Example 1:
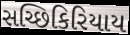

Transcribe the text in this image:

સચ્છિકિરિયાય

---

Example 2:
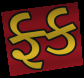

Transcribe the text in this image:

ફ્ક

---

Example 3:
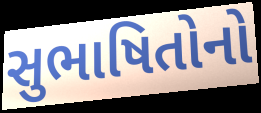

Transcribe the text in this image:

સુભાષિતોનો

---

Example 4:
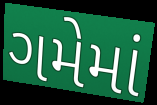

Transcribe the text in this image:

ગમેમાં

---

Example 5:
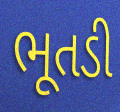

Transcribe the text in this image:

ભૂતડી